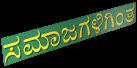
ಸಮಾಜಗಳಿಗಿಂತ